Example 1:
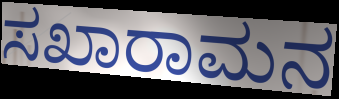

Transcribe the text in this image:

ಸಖಾರಾಮನ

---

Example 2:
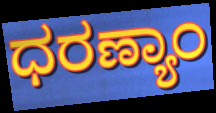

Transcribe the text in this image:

ಧರಣ್ಯಾಂ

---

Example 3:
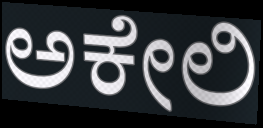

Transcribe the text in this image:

ಅಕೇಲಿ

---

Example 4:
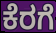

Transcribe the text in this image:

ಕೆರಗೆ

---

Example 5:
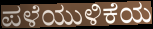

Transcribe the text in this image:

ಪಳೆಯುಳಿಕೆಯ